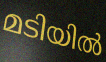
മടിയിൽ